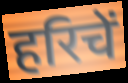
हरिचें